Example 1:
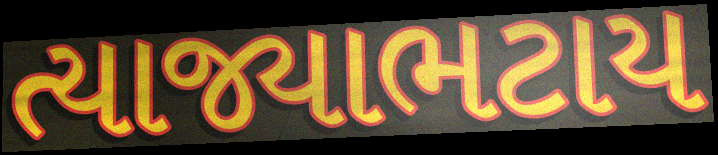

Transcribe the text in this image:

ત્યાજ્યાભટાય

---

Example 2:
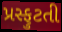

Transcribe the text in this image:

પ્રસ્ફુટતી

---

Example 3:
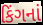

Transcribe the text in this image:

કિંગનાં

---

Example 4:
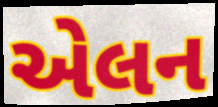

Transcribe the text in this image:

એલન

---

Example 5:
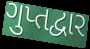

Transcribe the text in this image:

ગુપ્તદ્વાર